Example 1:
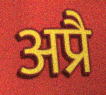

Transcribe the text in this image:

अप्रै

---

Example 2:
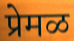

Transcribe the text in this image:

प्रेमळ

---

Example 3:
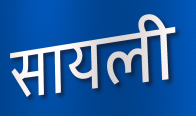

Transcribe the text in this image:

सायली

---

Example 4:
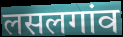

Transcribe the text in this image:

लसलगांव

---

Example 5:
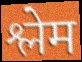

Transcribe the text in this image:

श्लेम